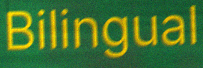
Bilingual